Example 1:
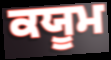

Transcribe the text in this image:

ਕਯੂਮ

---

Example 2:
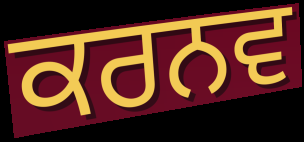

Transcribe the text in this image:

ਕਰਨਵ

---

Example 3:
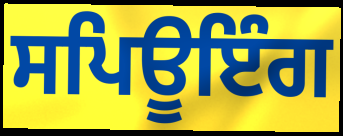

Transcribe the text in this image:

ਸਪਿਊਇੰਗ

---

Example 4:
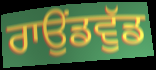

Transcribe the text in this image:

ਰਾਉਂਡਵੁੱਡ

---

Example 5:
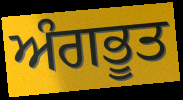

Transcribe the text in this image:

ਅੰਗਭੂਤ